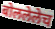
बोललेलेच